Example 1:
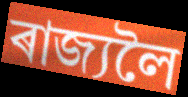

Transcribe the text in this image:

ৰাজ্যলৈ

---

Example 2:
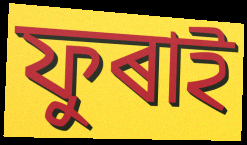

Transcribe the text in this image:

ফুৰাই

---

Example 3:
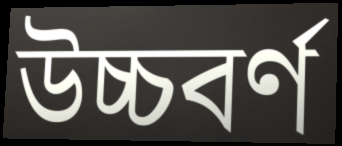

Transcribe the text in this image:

উচ্চবৰ্ণ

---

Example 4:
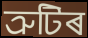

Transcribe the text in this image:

ত্ৰুটিৰ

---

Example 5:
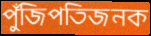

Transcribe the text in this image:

পুঁজিপতিজনক